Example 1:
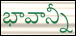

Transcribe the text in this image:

భావాన్నీ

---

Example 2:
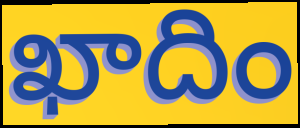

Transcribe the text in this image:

ఖాదిం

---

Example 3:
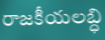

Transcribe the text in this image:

రాజకీయలబ్ధి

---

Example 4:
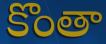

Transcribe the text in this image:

కొంతా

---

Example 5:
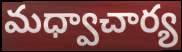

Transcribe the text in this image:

మధ్వాచార్య